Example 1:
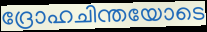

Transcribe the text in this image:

ദ്രോഹചിന്തയോടെ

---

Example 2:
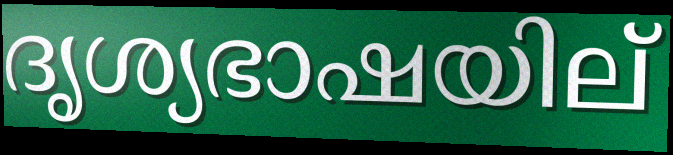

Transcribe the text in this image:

ദൃശ്യഭാഷയില്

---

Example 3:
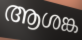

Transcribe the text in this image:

ആശങ്ക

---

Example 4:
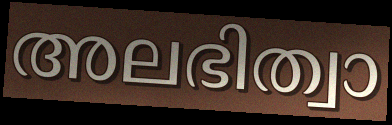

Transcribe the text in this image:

അലഭിത്വാ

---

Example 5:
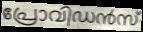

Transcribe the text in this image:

പ്രോവിഡൻസ്